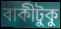
বাকীটুকু